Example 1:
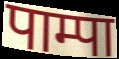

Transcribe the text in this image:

पाम्पा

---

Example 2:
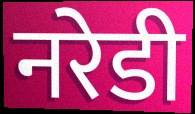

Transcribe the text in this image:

नरेडी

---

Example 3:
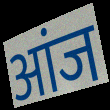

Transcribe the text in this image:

आंज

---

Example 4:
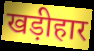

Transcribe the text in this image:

खड़ीहार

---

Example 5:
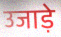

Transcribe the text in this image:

उजाड़े